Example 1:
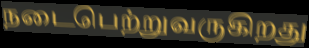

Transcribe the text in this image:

நடைபெற்றுவருகிறது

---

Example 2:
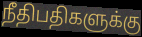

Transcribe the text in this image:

நீதிபதிகளுக்கு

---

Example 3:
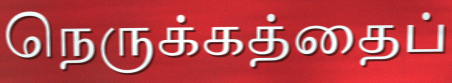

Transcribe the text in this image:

நெருக்கத்தைப்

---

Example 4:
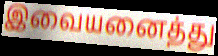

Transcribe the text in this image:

இவையனைத்து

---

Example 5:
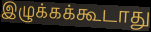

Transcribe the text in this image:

இழுக்கக்கூடாது